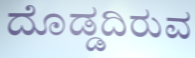
ದೊಡ್ಡದಿರುವ